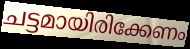
ചട്ടമായിരിക്കേണം